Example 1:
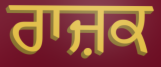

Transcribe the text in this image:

ਰਾਜ਼ਕ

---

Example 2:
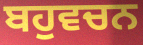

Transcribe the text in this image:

ਬਹੁਵਚਨ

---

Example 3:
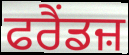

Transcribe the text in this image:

ਫਰੈਂਡਜ਼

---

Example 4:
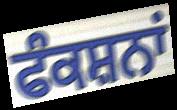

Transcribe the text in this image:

ਫੰਕਸ਼ਨਾਂ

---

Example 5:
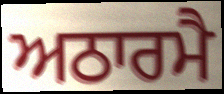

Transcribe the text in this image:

ਅਠਾਰਮੈ